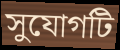
সুযোগটি